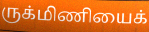
ருக்மிணியைக்